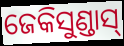
ଜେକିସୁଣ୍ଡାସ୍